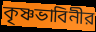
কৃষ্ণভাবিনীর